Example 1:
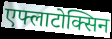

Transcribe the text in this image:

एफ्लाटोक्सिन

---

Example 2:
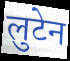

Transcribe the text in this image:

लुटेन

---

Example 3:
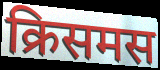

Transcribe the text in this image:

क्रिसमस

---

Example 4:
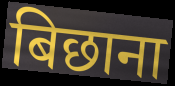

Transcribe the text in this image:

बिछाना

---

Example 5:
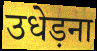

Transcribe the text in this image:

उधेड़ना